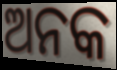
ଅନକ